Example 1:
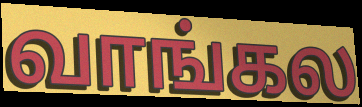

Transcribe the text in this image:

வாங்கல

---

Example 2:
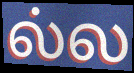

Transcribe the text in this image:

ல்ல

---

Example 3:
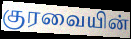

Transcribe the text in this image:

குரவையின்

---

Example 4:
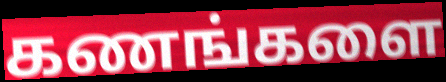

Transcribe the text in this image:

கணங்களை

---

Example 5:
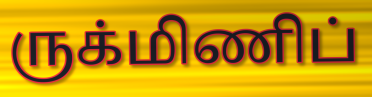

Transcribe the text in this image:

ருக்மிணிப்